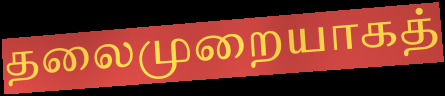
தலைமுறையாகத்